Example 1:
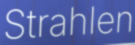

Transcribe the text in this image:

Strahlen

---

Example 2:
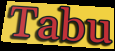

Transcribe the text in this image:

Tabu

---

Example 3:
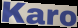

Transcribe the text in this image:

Karo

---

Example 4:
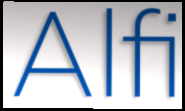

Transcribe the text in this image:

Alfi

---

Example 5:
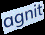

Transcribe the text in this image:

agnit